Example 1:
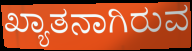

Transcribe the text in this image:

ಖ್ಯಾತನಾಗಿರುವ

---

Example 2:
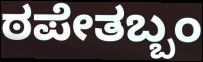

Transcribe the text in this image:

ಠಪೇತಬ್ಬಂ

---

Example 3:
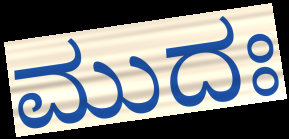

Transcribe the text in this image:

ಮುದಃ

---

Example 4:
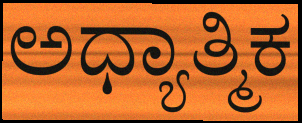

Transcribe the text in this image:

ಅಧ್ಯಾತ್ಮಿಕ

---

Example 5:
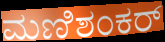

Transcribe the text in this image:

ಮಣಿಶಂಕರ್